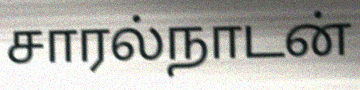
சாரல்நாடன்